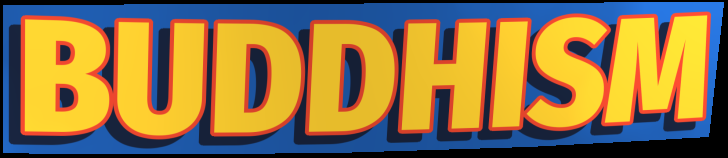
BUDDHISM